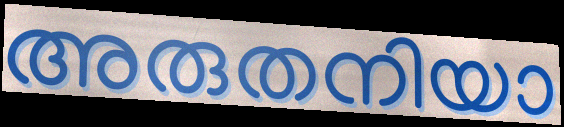
അരുതനിയാ